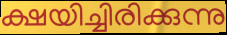
ക്ഷയിച്ചിരിക്കുന്നു